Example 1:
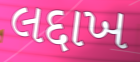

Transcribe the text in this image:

લદ્દાખ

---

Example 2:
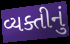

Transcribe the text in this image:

વ્યક્તીનું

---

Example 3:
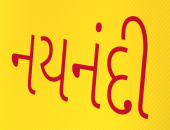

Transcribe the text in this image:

નયનંદી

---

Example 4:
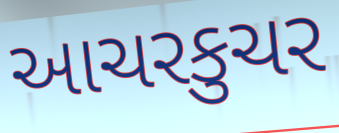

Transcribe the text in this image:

આચરકુચર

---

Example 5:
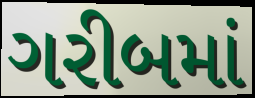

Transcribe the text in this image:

ગરીબમાં